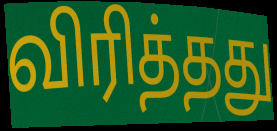
விரித்தது